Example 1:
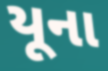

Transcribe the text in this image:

યૂના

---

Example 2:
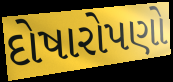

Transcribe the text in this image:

દોષારોપણો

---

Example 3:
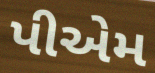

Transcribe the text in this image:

પીએમ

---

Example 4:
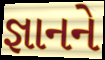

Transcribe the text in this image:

જ્ઞાનને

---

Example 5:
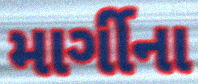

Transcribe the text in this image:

માર્ગીના